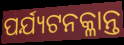
ପର୍ଯ୍ୟଟନକ୍ଳାନ୍ତ